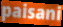
paisani